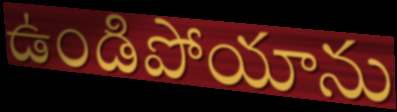
ఉండిపోయాను